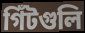
গিঁটগুলি